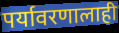
पर्यावरणालाही